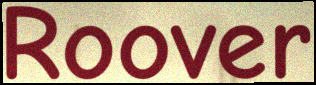
Roover